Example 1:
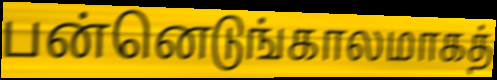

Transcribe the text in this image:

பன்னெடுங்காலமாகத்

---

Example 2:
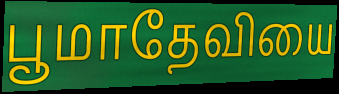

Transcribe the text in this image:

பூமாதேவியை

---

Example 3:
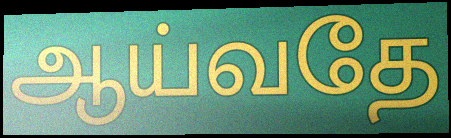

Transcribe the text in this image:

ஆய்வதே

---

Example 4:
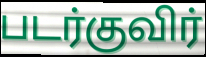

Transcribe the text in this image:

படர்குவிர்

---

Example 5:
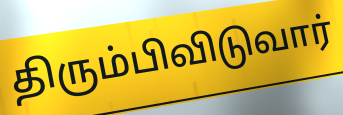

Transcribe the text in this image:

திரும்பிவிடுவார்